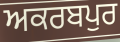
ਅਕਰਬਪੁਰ